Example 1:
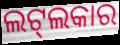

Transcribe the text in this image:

ଲଟ୍‌ଲକାର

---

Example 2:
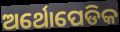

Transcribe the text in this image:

ଅର୍ଥୋପେଡିକ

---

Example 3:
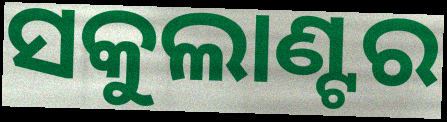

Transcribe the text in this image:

ସକୁଲାଣ୍ଟର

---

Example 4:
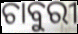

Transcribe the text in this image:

ଚାବୁରୀ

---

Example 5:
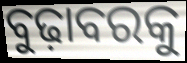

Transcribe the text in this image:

ବୁଢ଼ାବରକୁ